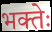
भक्तेः